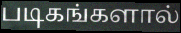
படிகங்களால்